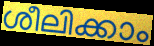
ശീലിക്കാം